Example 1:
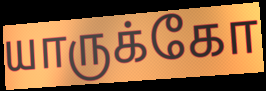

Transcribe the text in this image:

யாருக்கோ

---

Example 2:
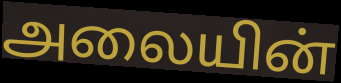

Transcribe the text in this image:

அலையின்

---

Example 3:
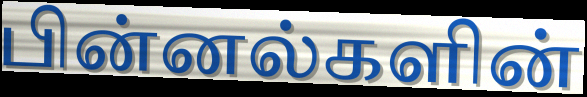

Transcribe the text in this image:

பின்னல்களின்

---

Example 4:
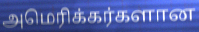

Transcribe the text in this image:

அமெரிக்கர்களான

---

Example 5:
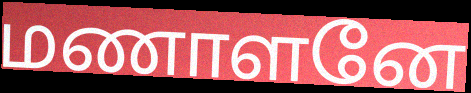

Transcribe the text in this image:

மணாளனே